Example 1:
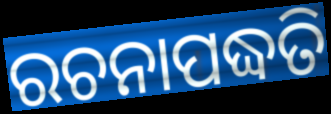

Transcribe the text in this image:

ରଚନାପଦ୍ଧତି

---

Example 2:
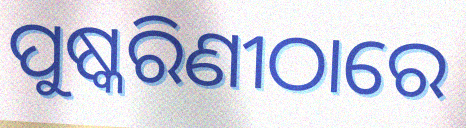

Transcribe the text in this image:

ପୁଷ୍କରିଣୀଠାରେ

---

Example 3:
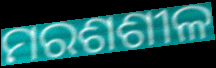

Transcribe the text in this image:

ମରଶଶୀଳ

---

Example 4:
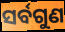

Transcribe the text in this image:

ସର୍ବଗୁଣ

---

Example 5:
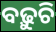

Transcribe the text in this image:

ବଢ଼ୁଚି